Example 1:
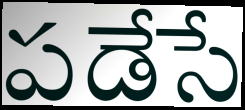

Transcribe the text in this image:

పడేసే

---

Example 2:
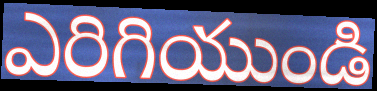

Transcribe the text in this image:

ఎరిగియుండి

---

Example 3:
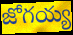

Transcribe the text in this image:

జోగయ్య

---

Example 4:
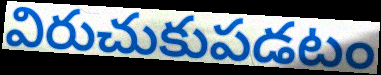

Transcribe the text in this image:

విరుచుకుపడటం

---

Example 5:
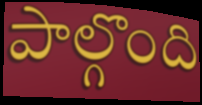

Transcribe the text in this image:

పాల్గొంది